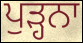
ਪੁੜ੍ਹਨਾ